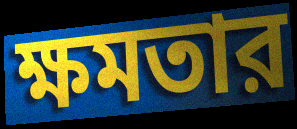
ক্ষমতার